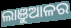
ଲାଞୁଆଳର